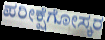
ಪರೀಕ್ಷೆಗೋಸ್ಕರ